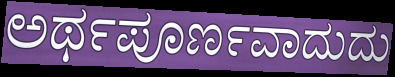
ಅರ್ಥಪೂರ್ಣವಾದುದು